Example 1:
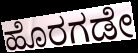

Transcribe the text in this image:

ಹೊರಗಡೇ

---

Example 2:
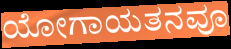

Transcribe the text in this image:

ಯೋಗಾಯತನವೂ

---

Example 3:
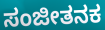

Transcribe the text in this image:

ಸಂಜೀತನಕ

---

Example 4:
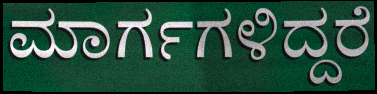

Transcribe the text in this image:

ಮಾರ್ಗಗಳಿದ್ದರೆ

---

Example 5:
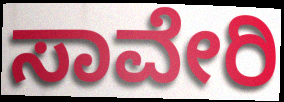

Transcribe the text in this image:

ಸಾವೇರಿ